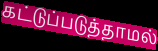
கட்டுப்படுத்தாமல்